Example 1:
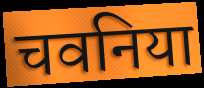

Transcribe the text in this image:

चवनिया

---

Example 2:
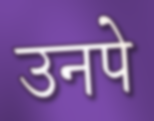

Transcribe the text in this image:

उनपे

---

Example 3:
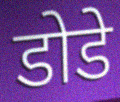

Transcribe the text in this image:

डोडे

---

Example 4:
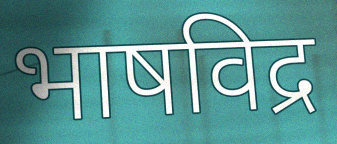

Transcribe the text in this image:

भाषविद्र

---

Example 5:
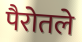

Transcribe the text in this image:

पैरोतले